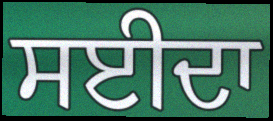
ਸਈਦਾ